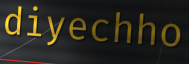
diyechho